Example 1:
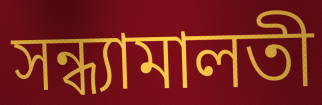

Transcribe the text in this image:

সন্ধ্যামালতী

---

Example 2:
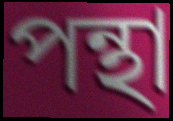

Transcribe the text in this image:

পন্থা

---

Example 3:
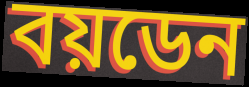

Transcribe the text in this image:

বয়ডেন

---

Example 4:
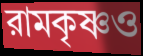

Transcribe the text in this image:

রামকৃষ্ণও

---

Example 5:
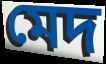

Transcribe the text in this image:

মেদ